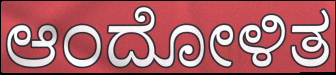
ಆಂದೋಳಿತ